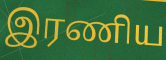
இரணிய